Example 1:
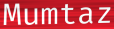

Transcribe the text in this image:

Mumtaz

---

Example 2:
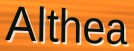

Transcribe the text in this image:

Althea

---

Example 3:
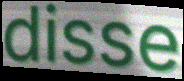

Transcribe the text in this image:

disse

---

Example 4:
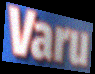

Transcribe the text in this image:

Varu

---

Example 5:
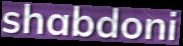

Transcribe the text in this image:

shabdoni